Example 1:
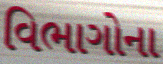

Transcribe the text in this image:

વિભાગોના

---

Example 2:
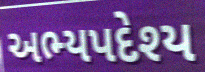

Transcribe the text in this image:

અભ્યપદેશ્ય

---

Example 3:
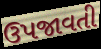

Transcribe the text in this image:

ઉપજાવતી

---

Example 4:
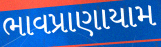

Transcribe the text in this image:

ભાવપ્રાણાયામ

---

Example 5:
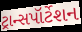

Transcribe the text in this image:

ટ્રાન્સપૉર્ટેશન